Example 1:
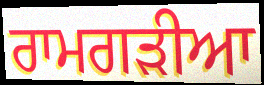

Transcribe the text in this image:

ਰਾਮਗੜੀਆ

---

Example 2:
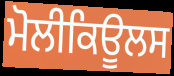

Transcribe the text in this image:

ਮੋਲੀਕਿਊਲਸ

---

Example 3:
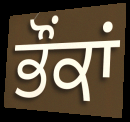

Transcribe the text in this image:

ਭੌਂਕਾਂ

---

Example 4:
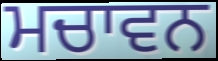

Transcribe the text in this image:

ਮਚਾਵਨ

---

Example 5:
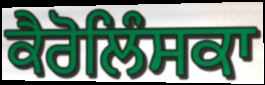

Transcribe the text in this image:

ਕੈਰੋਲਿੰਸਕਾ